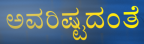
ಅವರಿಷ್ಟದಂತೆ